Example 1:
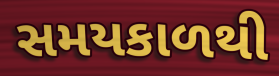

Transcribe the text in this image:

સમયકાળથી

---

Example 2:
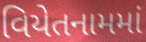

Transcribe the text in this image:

વિયેતનામમાં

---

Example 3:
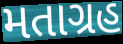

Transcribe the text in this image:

મતાગ્રહ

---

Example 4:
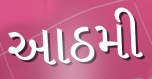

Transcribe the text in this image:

આઠમી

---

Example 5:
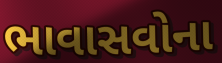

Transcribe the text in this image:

ભાવાસવોના